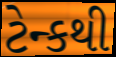
ટેન્કથી